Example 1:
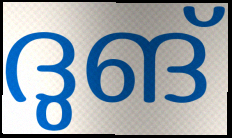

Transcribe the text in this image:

ദുങ്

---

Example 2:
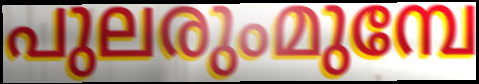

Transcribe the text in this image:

പുലരുംമുമ്പേ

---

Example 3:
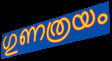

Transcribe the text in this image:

ഗുണത്രയം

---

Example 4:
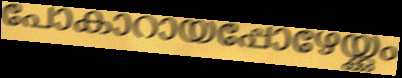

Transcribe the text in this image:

പോകാറായപ്പോഴേയ്ക്കും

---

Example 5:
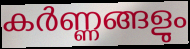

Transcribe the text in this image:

കർണ്ണങ്ങളും